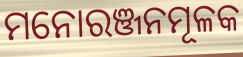
ମନୋରଞ୍ଜନମୂଳକ